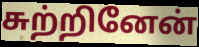
சுற்றினேன்